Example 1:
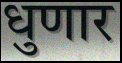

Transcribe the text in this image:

धुणार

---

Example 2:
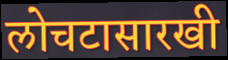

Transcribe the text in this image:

लोचटासारखी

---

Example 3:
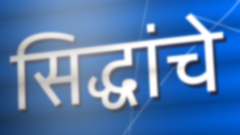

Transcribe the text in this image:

सिद्धांचे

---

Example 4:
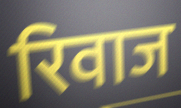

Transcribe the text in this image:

रिवाज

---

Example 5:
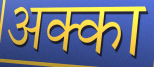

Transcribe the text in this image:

अक्का